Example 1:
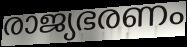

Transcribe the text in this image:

രാജ്യഭരണം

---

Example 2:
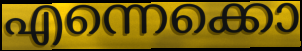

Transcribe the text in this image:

എന്നെക്കൊ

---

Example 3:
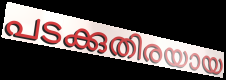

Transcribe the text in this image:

പടക്കുതിരയായ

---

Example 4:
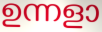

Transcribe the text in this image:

ഉന്നളാ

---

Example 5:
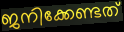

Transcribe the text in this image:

ജനിക്കേണ്ടത്